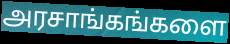
அரசாங்கங்களை